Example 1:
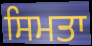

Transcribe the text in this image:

ਸਿਮਤਾ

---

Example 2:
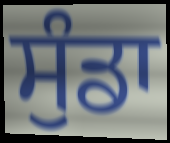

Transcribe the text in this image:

ਸੁੰਡਾ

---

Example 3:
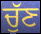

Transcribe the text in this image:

ਚੁੱਣ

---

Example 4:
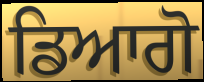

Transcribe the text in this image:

ਡਿਆਗੋ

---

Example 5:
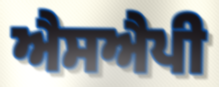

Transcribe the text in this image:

ਐਸਐਪੀ